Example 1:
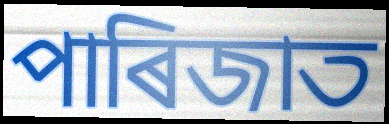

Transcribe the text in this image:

পাৰিজাত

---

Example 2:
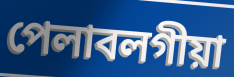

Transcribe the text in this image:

পেলাবলগীয়া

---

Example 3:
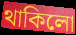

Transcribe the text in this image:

থাকিলো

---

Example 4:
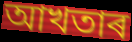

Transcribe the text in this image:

আখতাৰ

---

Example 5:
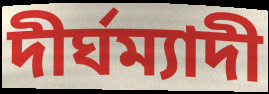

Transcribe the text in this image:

দীৰ্ঘম্যাদী